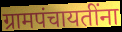
ग्रामपंचायतींना